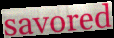
savored